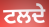
ਟਲਦੇ